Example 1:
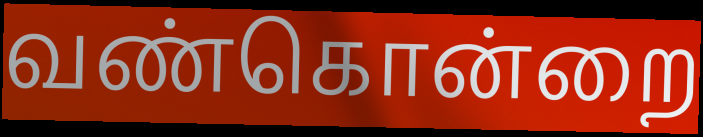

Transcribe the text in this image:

வண்கொன்றை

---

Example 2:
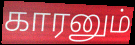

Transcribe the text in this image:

காரனும்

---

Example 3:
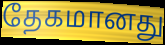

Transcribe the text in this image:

தேகமானது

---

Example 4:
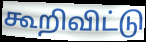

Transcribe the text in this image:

கூறிவிட்டு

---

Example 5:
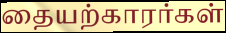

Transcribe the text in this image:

தையற்காரர்கள்